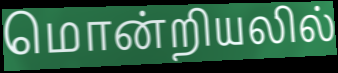
மொன்றியலில்